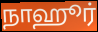
நாஹூர்